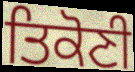
ਤਿਕੋਣੀ